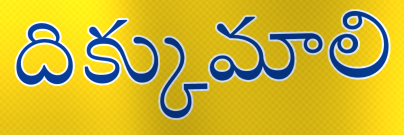
దిక్కుమాలి